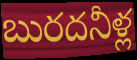
బురదనీళ్ల